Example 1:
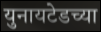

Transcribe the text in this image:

युनायटेडच्या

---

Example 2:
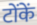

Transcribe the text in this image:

टोंकें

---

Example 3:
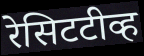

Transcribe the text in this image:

रेसिटटीव्ह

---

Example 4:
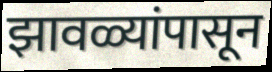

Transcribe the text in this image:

झावळ्यांपासून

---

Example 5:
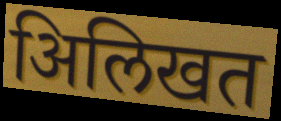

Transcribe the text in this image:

अिलिखत